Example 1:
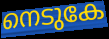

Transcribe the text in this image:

നെടുകേ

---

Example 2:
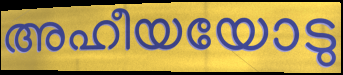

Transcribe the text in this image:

അഹീയയോടു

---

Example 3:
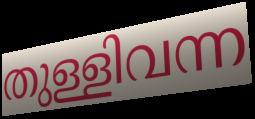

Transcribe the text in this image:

തുള്ളിവന്ന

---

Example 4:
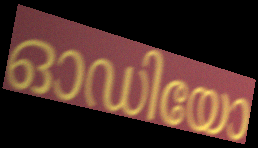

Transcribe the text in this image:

ഓഡിയോ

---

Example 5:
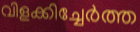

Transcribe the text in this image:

വിളക്കിച്ചേർത്ത